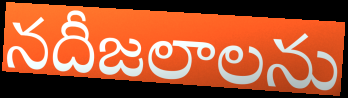
నదీజలాలను